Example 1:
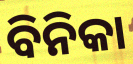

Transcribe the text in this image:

ବିନିକା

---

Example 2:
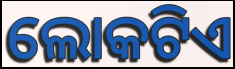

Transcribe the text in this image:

ଲୋକଟିଏ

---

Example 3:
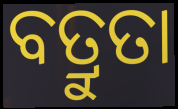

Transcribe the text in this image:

ବତ୍ରୁତା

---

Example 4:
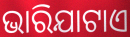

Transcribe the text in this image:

ଭାରିଯାଟାଏ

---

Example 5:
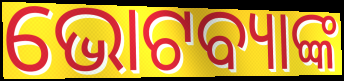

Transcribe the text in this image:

ଭୋଟବ୍ୟାଙ୍କ